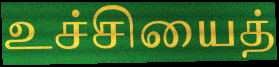
உச்சியைத்